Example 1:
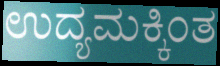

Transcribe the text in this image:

ಉದ್ಯಮಕ್ಕಿಂತ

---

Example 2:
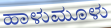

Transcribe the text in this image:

ಹಾಳುಮೂಳು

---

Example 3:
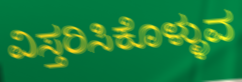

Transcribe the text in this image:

ವಿಸ್ತರಿಸಿಕೊಳ್ಳುವ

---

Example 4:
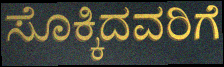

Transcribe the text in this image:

ಸೊಕ್ಕಿದವರಿಗೆ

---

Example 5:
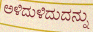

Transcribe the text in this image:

ಅಳಿದುಳಿದುದನ್ನು